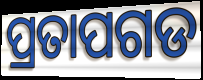
ପ୍ରତାପଗଡ